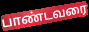
பாண்டவரை